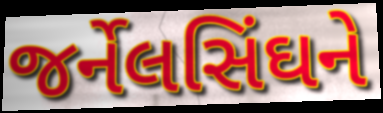
જર્નેલસિંઘને